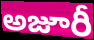
అజూరీ